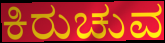
ಕಿರುಚುವ